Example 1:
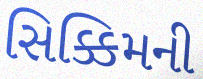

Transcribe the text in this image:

સિક્કિમની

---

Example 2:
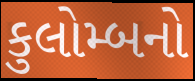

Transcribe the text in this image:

કુલોમ્બનો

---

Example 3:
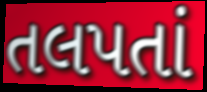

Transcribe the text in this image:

તલપતાં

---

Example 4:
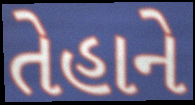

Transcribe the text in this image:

તેહાને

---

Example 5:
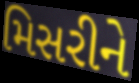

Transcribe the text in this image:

મિસરીને